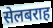
सेलबराह